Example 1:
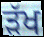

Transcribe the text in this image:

ੜੱਖ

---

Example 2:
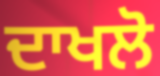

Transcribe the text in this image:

ਦਾਖਲੋ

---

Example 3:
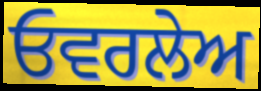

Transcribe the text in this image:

ਓਵਰਲੇਅ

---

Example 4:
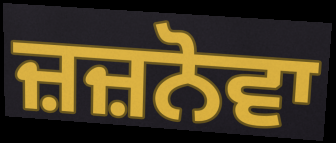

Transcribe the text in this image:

ਜ਼ਜ਼ਨੋਵਾ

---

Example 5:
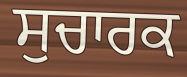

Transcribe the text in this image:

ਸੁਚਾਰਕ